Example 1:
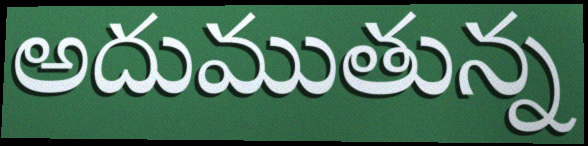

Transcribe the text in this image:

అదుముతున్న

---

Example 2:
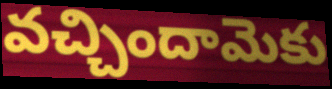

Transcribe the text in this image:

వచ్చిందామెకు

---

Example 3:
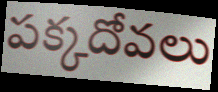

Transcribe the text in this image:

పక్కదోవలు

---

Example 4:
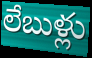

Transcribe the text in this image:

లేబుళ్లు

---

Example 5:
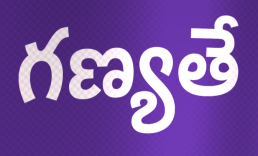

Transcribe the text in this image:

గణ్యతే